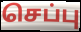
செப்பு